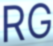
RG